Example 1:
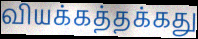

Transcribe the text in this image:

வியக்கத்தக்கது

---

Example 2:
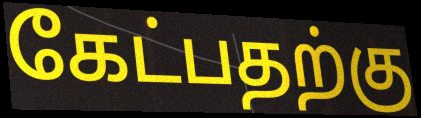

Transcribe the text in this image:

கேட்பதற்கு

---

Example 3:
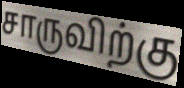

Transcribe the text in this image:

சாருவிற்கு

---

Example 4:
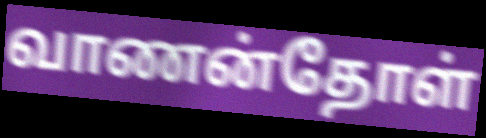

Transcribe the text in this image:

வாணன்தோள்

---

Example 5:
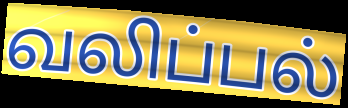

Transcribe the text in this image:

வலிப்பல்